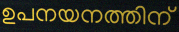
ഉപനയനത്തിന്